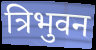
त्रिभुवन